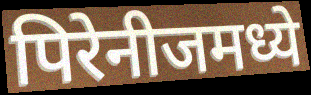
पिरेनीजमध्ये